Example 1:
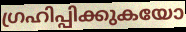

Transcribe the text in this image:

ഗ്രഹിപ്പിക്കുകയോ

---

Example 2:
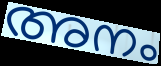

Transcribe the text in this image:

അനം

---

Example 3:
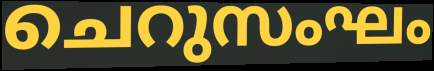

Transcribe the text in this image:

ചെറുസംഘം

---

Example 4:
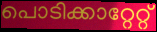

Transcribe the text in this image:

പൊടിക്കാറ്റേറ്റ്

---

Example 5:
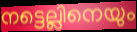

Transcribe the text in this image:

നട്ടെല്ലിനെയും